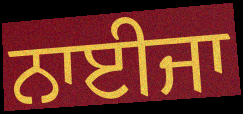
ਨਾਈਜਾ